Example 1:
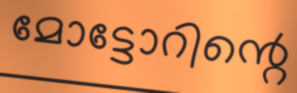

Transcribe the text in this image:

മോട്ടോറിന്റെ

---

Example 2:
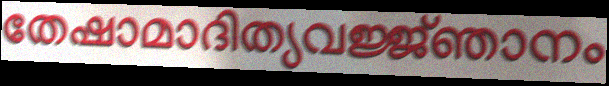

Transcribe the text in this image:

തേഷാമാദിത്യവജ്ജ്ഞാനം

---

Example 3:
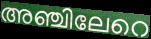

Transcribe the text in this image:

അഞ്ചിലേറെ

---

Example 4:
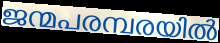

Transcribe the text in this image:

ജന്മപരമ്പരയിൽ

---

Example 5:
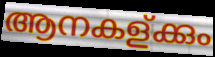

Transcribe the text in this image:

ആനകള്ക്കും